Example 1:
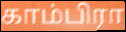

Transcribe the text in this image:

காம்பிரா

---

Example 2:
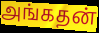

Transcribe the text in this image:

அங்கதன்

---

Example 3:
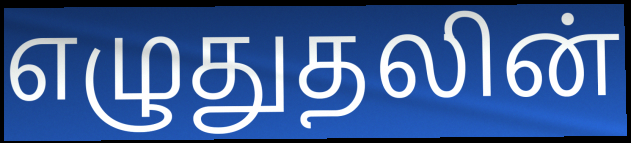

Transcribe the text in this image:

எழுதுதலின்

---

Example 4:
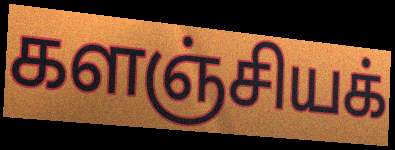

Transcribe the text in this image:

களஞ்சியக்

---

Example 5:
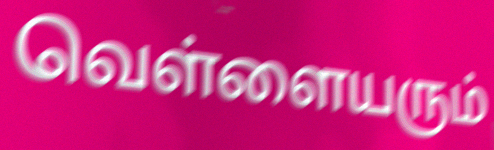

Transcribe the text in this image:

வெள்ளையரும்